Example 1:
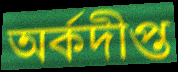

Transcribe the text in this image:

অর্কদীপ্ত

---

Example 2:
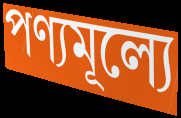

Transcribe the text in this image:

পণ্যমূল্যে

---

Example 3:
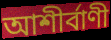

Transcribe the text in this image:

আশীর্বাণী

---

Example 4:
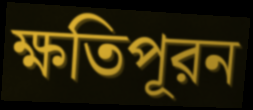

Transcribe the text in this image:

ক্ষতিপূরন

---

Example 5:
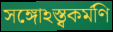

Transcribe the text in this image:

সঙ্গোঽস্ত্বকর্মণি